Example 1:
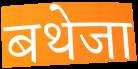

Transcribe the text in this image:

बथेजा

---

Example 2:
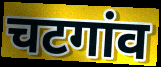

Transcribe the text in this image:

चटगांव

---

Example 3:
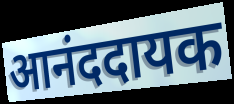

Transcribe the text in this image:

आनंददायक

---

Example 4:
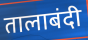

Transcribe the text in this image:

तालाबंदी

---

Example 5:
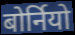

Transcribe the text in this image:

बोर्नियो